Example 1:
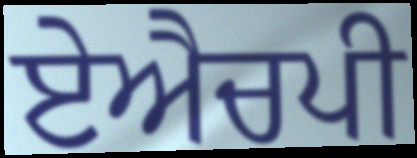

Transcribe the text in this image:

ਏਐਚਪੀ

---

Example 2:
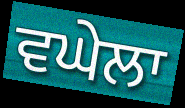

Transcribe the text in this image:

ਵਘੇਲਾ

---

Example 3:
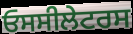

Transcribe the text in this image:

ਓਸਸੀਲੇਟਰਸ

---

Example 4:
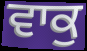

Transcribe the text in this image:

ਵਾਕੁ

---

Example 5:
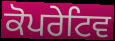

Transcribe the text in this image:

ਕੋਪਰੇਟਿਵ